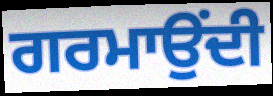
ਗਰਮਾਉਂਦੀ